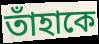
তাঁহাকে